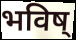
भविष्